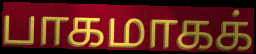
பாகமாகக்